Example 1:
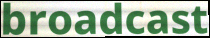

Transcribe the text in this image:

broadcast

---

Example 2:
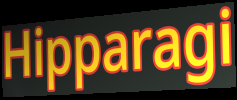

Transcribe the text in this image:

Hipparagi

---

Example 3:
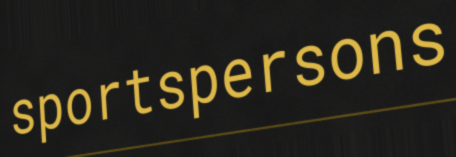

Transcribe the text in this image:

sportspersons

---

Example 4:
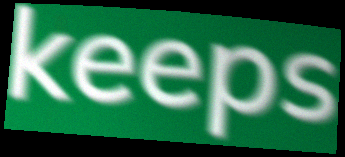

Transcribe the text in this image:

keeps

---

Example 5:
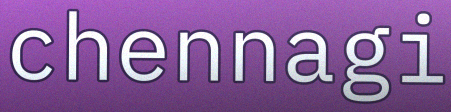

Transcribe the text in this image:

chennagi